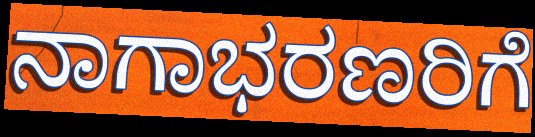
ನಾಗಾಭರಣರಿಗೆ